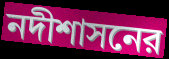
নদীশাসনের